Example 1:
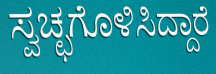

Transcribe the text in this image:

ಸ್ವಚ್ಛಗೊಳಿಸಿದ್ದಾರೆ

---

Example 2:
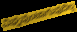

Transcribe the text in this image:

ವಿಘ್ನವುಂಟಾಗುವುದಿಲ್ಲ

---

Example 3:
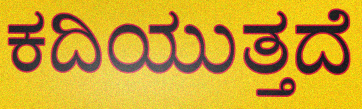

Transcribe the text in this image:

ಕದಿಯುತ್ತದೆ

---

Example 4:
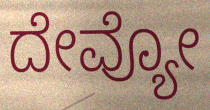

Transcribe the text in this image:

ದೇವ್ಯೋ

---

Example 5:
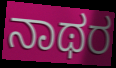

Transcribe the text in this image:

ನಾಥರ